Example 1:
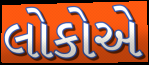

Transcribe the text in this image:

લોકોએ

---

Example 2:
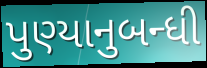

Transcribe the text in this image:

પુણ્યાનુબન્ધી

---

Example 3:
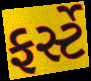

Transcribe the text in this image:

ફર્સ્ટે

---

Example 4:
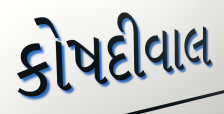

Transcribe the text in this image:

કોષદીવાલ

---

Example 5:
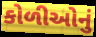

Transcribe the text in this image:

કોળીઓનું